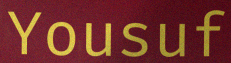
Yousuf